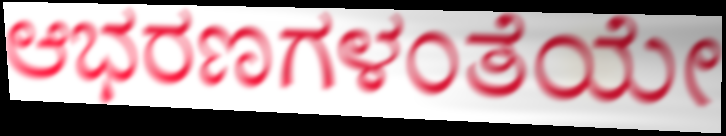
ಆಭರಣಗಳಂತೆಯೇ